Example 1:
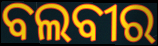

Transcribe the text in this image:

ବଲବୀର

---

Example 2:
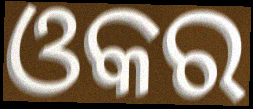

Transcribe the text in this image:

ଓକର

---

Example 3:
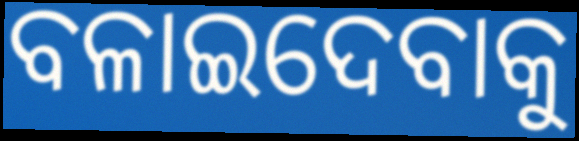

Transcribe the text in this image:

ବଳାଇଦେବାକୁ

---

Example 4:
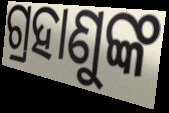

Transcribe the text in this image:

ଗ୍ରହାଣୁଙ୍କ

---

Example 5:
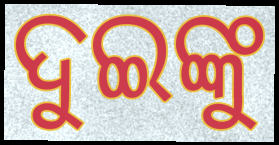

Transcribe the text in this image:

ଦୁଇଙ୍କୁ